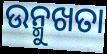
ଉନ୍ମୁଖତା